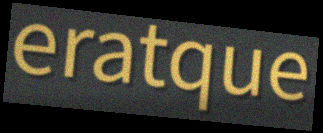
eratque